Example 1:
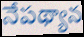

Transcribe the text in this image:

నేపథ్యాన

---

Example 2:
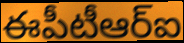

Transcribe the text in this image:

ఈపీటీఆర్ఐ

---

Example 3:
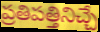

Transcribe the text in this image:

ప్రతిపత్తినిచ్చే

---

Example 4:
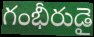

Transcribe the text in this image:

గంభీరుడై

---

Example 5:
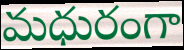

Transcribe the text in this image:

మధురంగా